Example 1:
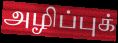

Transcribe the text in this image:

அழிப்புக்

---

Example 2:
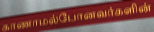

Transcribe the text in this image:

காணாமல்போனவர்களின்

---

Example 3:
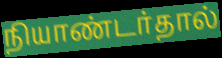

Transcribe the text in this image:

நியாண்டர்தால்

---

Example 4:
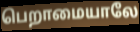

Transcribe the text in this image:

பெறாமையாலே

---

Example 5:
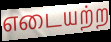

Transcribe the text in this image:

எடையற்ற